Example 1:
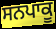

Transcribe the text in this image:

ਸਨਪਾਕੂ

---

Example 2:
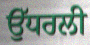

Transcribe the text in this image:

ਉੱਧਰਲੀ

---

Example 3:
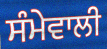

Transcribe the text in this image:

ਸੰਮੇਵਾਲੀ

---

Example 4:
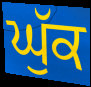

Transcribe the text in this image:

ਘੁੱਕ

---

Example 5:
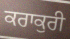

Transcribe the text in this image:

ਕਰਾਕੁਰੀ